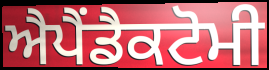
ਐਪੈਂਡੈਕਟੋਮੀ